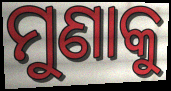
ମୁଣାକୁ